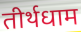
तीर्थधाम